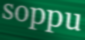
soppu